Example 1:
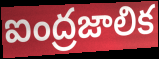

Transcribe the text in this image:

ఐంద్రజాలిక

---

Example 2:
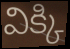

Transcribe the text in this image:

విక్కి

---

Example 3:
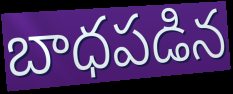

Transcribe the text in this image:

బాధపడిన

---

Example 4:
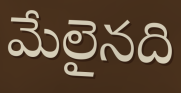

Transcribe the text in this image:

మేలైనది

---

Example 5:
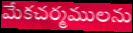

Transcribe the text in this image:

మేకచర్మములను